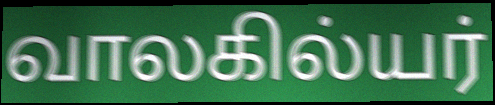
வாலகில்யர்